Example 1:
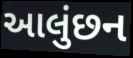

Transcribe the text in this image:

આલુંછન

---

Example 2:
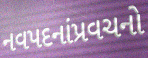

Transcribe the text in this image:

નવપદનાંપ્રવચનો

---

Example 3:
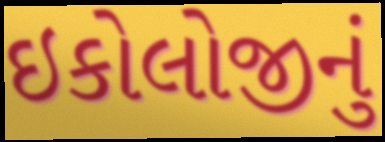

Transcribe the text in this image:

ઇકોલોજીનું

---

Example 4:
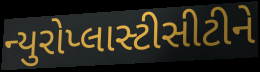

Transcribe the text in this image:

ન્યુરોપ્લાસ્ટીસીટીને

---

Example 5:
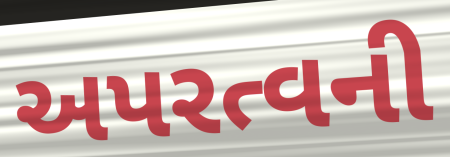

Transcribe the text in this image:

અપરત્વની